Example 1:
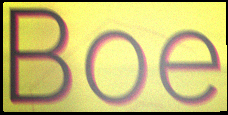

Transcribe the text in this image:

Boe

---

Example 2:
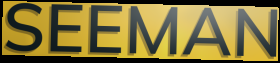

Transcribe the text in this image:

SEEMAN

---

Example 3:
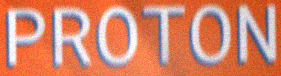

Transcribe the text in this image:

PROTON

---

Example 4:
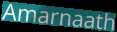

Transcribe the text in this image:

Amarnaath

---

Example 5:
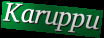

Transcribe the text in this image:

Karuppu